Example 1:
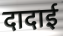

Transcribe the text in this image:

दादाई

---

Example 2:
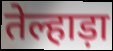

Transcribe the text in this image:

तेल्हाड़ा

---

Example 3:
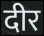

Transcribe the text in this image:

दीर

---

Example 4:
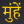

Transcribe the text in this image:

मुंहें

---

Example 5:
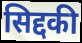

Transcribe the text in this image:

सिद्दकी